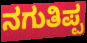
ನಗುತಿಪ್ಪ